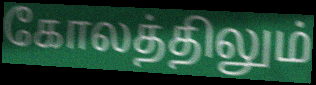
கோலத்திலும்